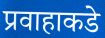
प्रवाहाकडे